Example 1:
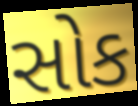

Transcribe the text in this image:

સોક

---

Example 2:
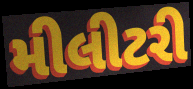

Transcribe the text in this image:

મીલીટરી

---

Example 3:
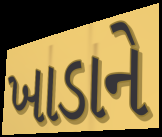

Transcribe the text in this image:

ખાડાને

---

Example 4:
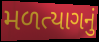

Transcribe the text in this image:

મળત્યાગનું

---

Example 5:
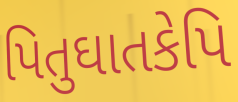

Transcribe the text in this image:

પિતુઘાતકેપિ